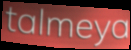
talmeya